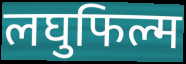
लघुफिल्म